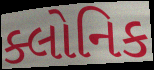
ક્લોનિક